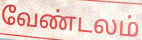
வேண்டலம்